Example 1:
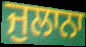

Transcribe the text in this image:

ਜੁਲਾਨਾ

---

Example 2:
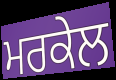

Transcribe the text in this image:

ਮਰਕੇਲ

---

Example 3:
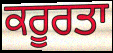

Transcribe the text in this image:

ਕਰੂਰਤਾ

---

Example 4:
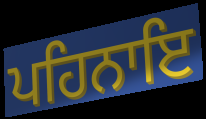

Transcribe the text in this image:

ਪਹਿਨਾਇ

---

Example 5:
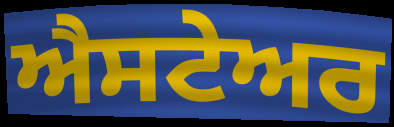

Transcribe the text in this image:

ਐਸਟੇਅਰ